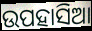
ଉପହାସିଆ